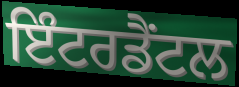
ਇੰਟਰਡੈਂਟਲ